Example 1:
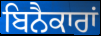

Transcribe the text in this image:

ਬਿਨੈਕਾਰਾਂ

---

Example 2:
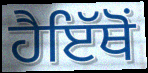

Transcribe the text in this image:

ਹੈਇੱਥੋਂ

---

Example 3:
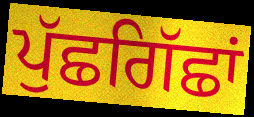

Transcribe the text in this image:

ਪੁੱਛਗਿੱਛਾਂ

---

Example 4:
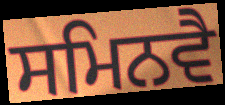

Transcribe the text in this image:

ਸਮਿਨਵੈ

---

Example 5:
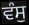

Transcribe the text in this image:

ਵੰਸੁ